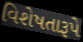
વિશેષતારૂપે